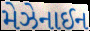
મેઝેનાઈન